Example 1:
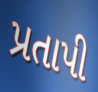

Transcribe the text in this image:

પ્રતાપી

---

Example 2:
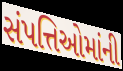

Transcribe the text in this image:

સંપત્તિઓમાંની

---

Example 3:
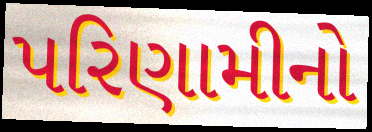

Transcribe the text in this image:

પરિણામીનો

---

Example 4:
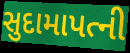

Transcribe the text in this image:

સુદામાપત્ની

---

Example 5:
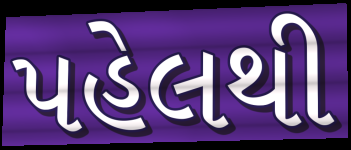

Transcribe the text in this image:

પહેલથી